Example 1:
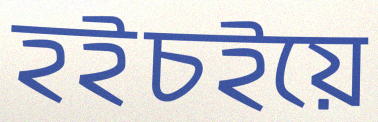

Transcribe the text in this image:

হইচইয়ে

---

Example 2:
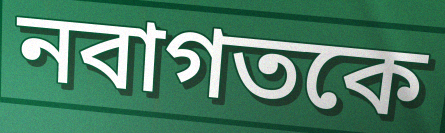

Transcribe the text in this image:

নবাগতকে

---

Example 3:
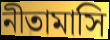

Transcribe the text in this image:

নীতামাসি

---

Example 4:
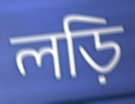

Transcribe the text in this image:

লড়ি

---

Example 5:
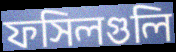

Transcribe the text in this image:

ফসিলগুলি